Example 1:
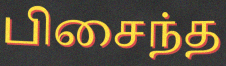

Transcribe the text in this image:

பிசைந்த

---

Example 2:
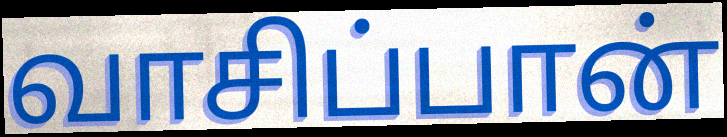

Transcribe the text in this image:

வாசிப்பான்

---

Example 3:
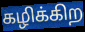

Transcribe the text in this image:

கழிக்கிற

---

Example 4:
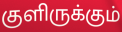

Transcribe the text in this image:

குளிருக்கும்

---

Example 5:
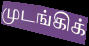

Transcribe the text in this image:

முடங்கிக்